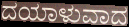
ದಯಾಳುವಾದ